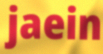
jaein